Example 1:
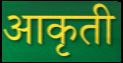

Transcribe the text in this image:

आकृती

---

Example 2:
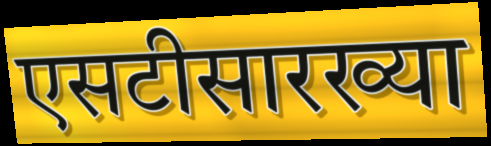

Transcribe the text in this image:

एसटीसारख्या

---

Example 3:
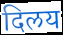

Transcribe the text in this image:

दिलय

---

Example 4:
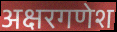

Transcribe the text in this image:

अक्षरगणेश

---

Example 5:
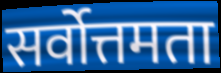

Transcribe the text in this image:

सर्वोत्तमता